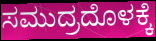
ಸಮುದ್ರದೊಳಕ್ಕೆ